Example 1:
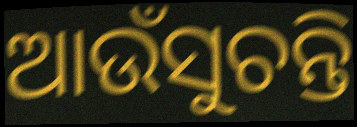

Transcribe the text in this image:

ଆଉଁସୁଚନ୍ତି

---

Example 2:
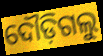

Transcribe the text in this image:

ଦୌଡ଼ିଗଲୁ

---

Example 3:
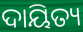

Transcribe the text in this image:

ଦାୟିତ୍ୟ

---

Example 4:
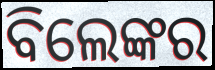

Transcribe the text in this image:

ବିଲେଙ୍କର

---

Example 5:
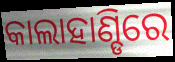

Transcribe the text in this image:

କାଲାହାଣ୍ଡିରେ